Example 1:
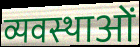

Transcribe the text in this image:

व्यवस्थाओें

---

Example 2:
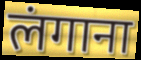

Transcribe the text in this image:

लंगाना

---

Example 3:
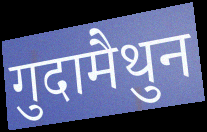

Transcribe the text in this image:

गुदामैथुन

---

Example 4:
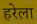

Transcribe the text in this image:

हरेला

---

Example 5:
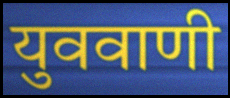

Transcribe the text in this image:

युववाणी